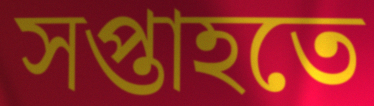
সপ্তাহতে